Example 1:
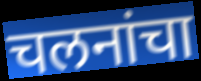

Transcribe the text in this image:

चलनांचा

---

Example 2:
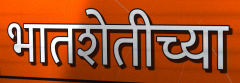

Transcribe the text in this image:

भातशेतीच्या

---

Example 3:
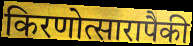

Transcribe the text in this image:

किरणोत्सारापैकी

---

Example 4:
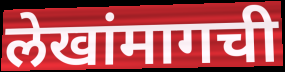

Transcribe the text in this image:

लेखांमागची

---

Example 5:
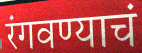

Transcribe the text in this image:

रंगवण्याचं